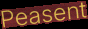
Peasent